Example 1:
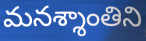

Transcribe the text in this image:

మనశ్శాంతిని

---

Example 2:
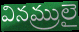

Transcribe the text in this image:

వినమ్రులై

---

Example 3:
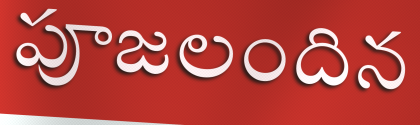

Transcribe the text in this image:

పూజలందిన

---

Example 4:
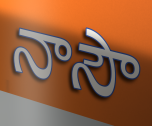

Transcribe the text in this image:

నాసౌ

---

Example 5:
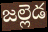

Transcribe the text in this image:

జల్లెడ